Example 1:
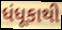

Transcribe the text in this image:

ધંધૂકાથી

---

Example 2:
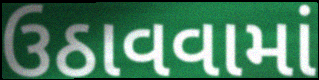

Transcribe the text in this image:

ઉઠાવવામાં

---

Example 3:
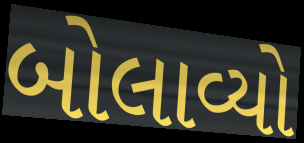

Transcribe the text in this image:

બોલાવ્યો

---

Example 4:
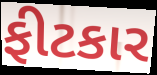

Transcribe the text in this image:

ફીટકાર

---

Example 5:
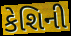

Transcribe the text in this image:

કેશિની